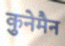
कुनेमैन